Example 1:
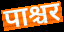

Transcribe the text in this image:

पाश्चर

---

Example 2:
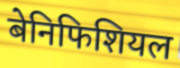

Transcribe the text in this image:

बेनिफिशियल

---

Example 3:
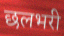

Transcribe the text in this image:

छलभरी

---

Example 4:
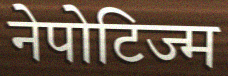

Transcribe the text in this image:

नेपोटिज्‍म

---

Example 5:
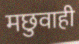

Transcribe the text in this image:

मछुवाही